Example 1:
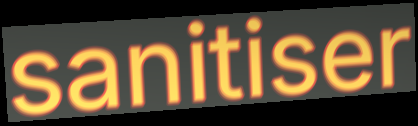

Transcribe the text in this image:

sanitiser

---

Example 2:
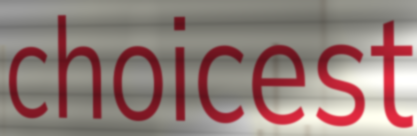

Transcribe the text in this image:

choicest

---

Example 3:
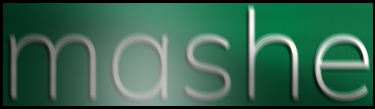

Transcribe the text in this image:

mashe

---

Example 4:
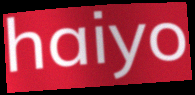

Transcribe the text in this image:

haiyo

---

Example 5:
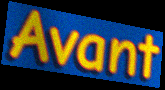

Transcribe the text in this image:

Avant